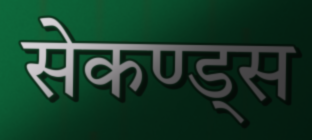
सेकण्ड्स